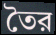
তৈর